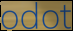
odot